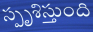
స్పృశిస్తుంది